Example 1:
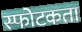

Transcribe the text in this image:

स्फोटकता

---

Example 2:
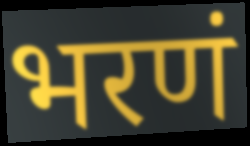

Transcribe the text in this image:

भरणं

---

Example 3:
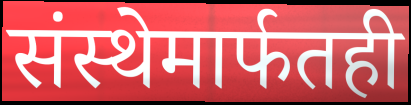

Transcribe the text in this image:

संस्थेमार्फतही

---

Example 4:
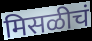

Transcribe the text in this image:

मिसळीचं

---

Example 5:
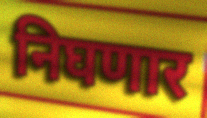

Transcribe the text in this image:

निघणार